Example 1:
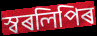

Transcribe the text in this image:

স্বৰলিপিৰ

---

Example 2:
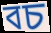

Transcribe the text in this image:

বচ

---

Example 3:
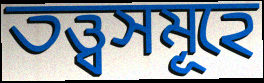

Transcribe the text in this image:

তত্ত্বসমূহে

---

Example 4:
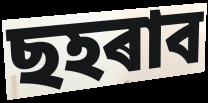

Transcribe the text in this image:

ছহৰাব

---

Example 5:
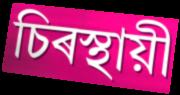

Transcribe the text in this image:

চিৰস্থায়ী